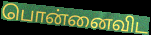
பொன்னைவிட